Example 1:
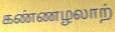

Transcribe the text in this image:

கண்ணழலாற்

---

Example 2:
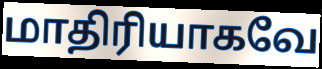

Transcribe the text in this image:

மாதிரியாகவே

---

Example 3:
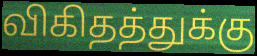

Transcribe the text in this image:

விகிதத்துக்கு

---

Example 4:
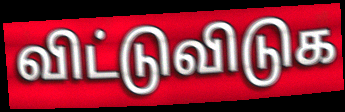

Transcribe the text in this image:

விட்டுவிடுக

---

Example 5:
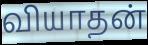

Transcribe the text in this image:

வியாதன்